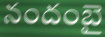
నందంబై